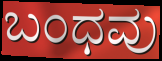
ಬಂಧವು